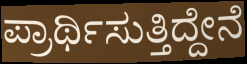
ಪ್ರಾರ್ಥಿಸುತ್ತಿದ್ದೇನೆ